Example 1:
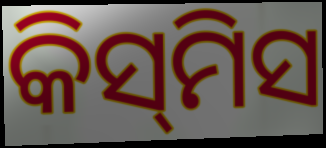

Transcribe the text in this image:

କିସ୍‌ମିସ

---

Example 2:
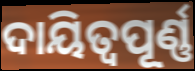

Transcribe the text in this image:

ଦାୟିତ୍ବପୂର୍ଣ୍ଣ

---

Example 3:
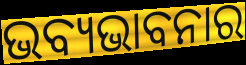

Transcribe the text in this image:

ଭବ୍ୟଭାବନାର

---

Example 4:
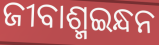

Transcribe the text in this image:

ଜୀବାଶ୍ମଇନ୍ଧନ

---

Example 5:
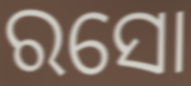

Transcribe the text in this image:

ରସୋ